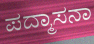
ಪದ್ಮಾಸನಾ